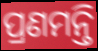
ପ୍ରଣମନ୍ତି